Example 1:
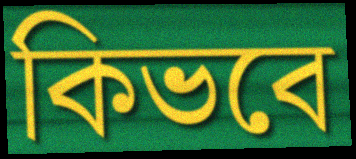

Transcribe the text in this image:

কিভবে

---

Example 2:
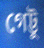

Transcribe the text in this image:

গেট্টু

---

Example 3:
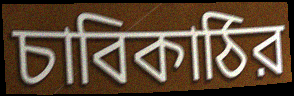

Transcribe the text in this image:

চাবিকাঠির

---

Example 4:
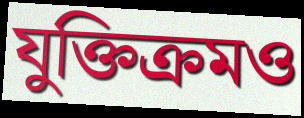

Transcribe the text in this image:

যুক্তিক্রমও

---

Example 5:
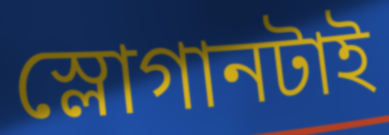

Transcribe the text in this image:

স্লোগানটাই